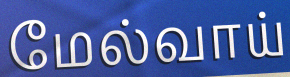
மேல்வாய்